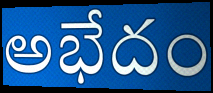
అభేదం